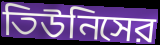
তিউনিসের